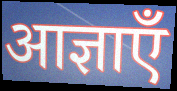
आज्ञाएँ